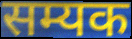
सम्यक